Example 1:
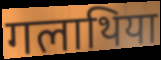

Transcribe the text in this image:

गलाथिया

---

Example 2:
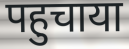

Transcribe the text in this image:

पहुचाया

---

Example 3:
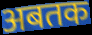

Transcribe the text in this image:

अबतक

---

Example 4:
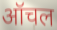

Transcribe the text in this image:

ऑचल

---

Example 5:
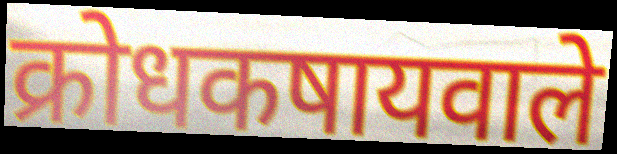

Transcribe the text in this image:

क्रोधकषायवाले